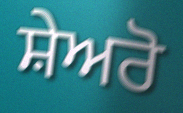
ਸ਼ੇਅਰੋ